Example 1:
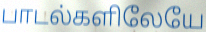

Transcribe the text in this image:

பாடல்களிலேயே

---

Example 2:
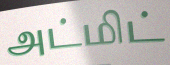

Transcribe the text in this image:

அட்மிட்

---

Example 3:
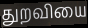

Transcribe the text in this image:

துறவியை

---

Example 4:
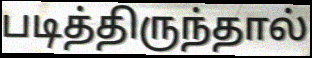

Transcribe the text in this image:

படித்திருந்தால்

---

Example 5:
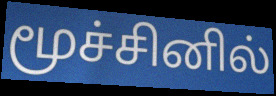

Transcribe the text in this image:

மூச்சினில்